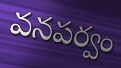
వనపర్వం